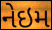
નેઇમ